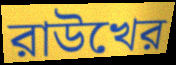
রাউখের